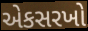
એકસરખો